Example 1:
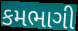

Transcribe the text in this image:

કમભાગી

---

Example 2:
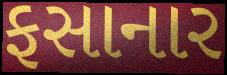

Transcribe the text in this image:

ફસાનાર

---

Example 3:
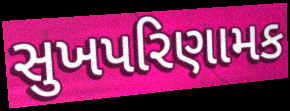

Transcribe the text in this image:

સુખપરિણામક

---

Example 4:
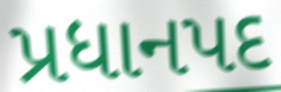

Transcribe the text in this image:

પ્રધાનપદ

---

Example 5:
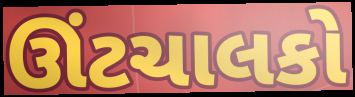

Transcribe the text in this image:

ઊંટચાલકો